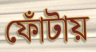
ফোঁটায়